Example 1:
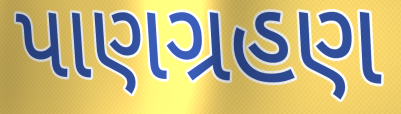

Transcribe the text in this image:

પાણગ્રહણ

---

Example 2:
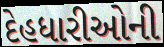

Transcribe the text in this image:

દેહધારીઓની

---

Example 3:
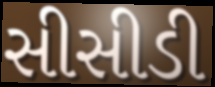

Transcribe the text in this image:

સીસીડી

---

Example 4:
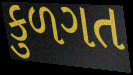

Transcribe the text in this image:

કુળગત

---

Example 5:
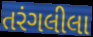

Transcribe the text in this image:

તરંગલીલા